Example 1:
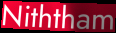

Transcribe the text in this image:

Niththam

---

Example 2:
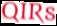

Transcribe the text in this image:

QIRs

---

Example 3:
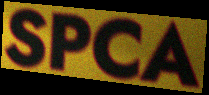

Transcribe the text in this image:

SPCA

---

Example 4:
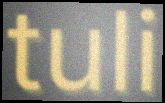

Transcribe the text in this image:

tuli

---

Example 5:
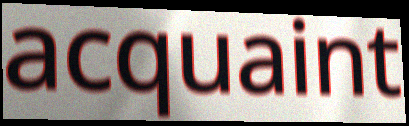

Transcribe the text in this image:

acquaint